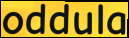
oddula